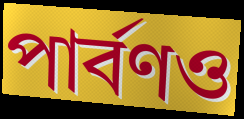
পার্বণও